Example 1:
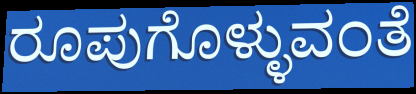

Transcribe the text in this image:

ರೂಪುಗೊಳ್ಳುವಂತೆ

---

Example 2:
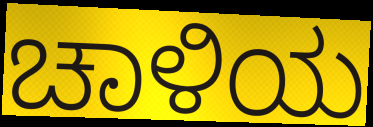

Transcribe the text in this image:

ಚಾಳಿಯ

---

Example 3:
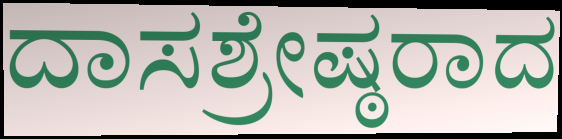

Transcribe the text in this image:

ದಾಸಶ್ರೇಷ್ಠರಾದ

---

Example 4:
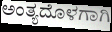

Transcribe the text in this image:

ಅಂತ್ಯದೊಳಗಾಗಿ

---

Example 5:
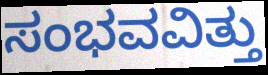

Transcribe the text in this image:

ಸಂಭವವಿತ್ತು